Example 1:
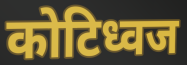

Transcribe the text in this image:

कोटिध्वज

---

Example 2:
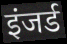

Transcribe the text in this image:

इंजर्ड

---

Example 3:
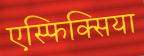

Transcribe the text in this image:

एस्फिक्सिया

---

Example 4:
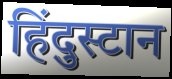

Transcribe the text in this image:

हिंदुस्टान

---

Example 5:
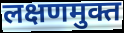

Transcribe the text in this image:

लक्षणमुक्त